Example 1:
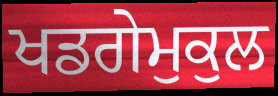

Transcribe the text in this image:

ਖਡਗੇਮੁਕੁਲ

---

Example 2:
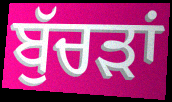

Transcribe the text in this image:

ਬੁੱਚੜਾਂ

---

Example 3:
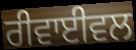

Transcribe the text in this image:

ਰੀਵਾਈਵਲ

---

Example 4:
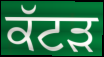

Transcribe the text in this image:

ਕੱਟੜ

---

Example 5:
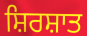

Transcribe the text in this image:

ਸ਼ਿਰਸ਼ਾਤ